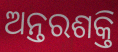
ଅନ୍ତରଶକ୍ତି